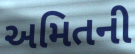
અમિતની